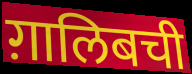
ग़ालिबची